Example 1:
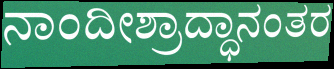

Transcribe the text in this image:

ನಾಂದೀಶ್ರಾದ್ಧಾನಂತರ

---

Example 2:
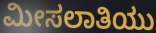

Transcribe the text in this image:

ಮೀಸಲಾತಿಯು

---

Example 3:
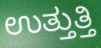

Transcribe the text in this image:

ಉತ್ತುತ್ತಿ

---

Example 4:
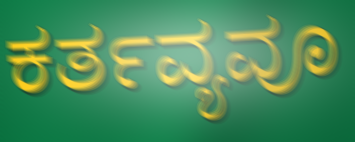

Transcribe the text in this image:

ಕರ್ತವ್ಯವೂ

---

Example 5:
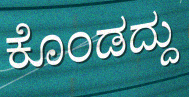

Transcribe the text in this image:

ಕೊಂಡದ್ದು